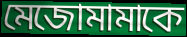
মেজোমামাকে